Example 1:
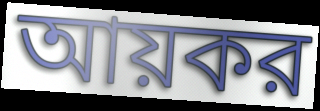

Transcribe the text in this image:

আয়কর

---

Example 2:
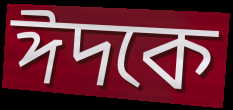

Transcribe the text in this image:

ঈদকে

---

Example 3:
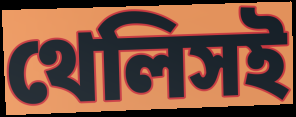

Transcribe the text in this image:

থেলিসই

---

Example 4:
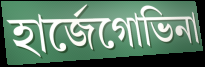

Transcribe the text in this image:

হার্জেগোভিনা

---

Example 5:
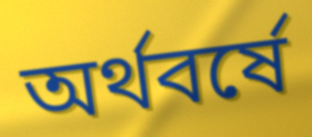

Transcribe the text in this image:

অর্থবর্ষে